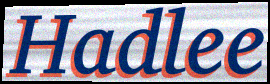
Hadlee